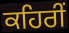
ਕਹਿਰੀਂ